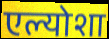
एल्योशा